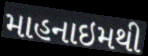
માહનાઇમથી